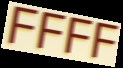
FFFF